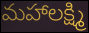
మహాలక్ష్మి